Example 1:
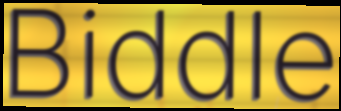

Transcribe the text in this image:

Biddle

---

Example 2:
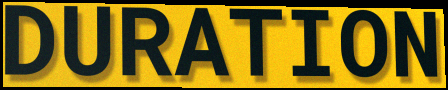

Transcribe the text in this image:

DURATION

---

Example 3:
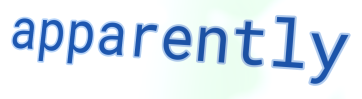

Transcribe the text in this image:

apparently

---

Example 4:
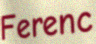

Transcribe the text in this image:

Ferenc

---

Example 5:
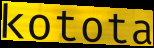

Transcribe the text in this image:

kotota